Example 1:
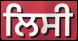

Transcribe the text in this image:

ਲਿਸੀ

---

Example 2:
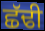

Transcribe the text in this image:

ਛੱਢੀ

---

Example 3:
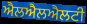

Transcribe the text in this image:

ਐਲਐਲਐਲਟੀ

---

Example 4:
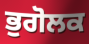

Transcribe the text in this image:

ਭੁਗੋਲਕ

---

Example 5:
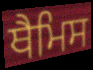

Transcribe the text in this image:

ਥੈਮਿਸ